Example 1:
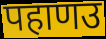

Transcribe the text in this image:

पहाणउ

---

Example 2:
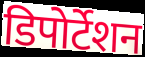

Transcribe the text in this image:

डिपोर्टेशन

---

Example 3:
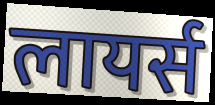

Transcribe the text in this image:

लायर्स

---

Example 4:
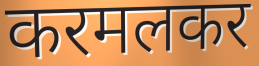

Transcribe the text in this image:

करमलकर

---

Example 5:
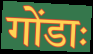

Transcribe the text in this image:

गोंडाः